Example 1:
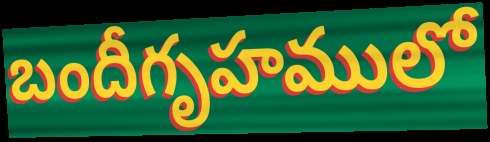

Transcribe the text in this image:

బందీగృహములో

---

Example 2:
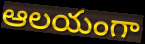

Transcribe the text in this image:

ఆలయంగా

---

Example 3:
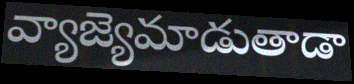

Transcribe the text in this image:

వ్యాజ్యెమాడుతాడా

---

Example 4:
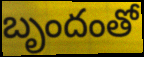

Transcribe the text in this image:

బృందంతో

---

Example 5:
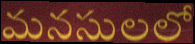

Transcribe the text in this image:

మనసులలో